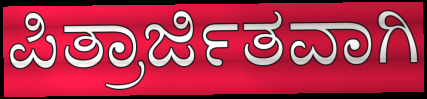
ಪಿತ್ರಾರ್ಜಿತವಾಗಿ